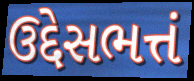
ઉદ્દેસભત્તં